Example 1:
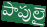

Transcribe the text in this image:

పాపులై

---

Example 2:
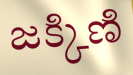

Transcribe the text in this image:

జక్కిణి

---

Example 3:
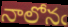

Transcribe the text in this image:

నాలోనఁ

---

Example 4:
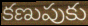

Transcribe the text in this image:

కణుపుకు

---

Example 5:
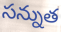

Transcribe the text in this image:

సన్నుత